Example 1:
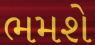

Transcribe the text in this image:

ભમશે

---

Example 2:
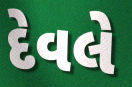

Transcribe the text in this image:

દેવલે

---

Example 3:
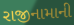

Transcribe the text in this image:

રાજીનામાની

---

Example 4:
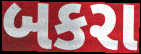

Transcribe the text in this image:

બકરા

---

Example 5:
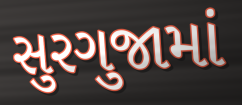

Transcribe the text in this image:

સુરગુજામાં